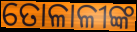
ତୋଳାଳୀଙ୍କ